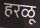
हरळू